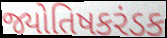
જ્યોતિષકરંડક